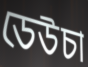
ডেউচা